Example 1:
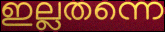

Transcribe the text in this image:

ഇല്ലതന്നെ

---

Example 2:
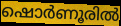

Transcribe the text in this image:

ഷൊർണൂരിൽ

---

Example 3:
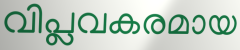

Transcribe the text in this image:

വിപ്ലവകരമായ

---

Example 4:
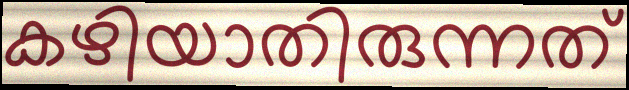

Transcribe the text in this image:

കഴിയാതിരുന്നത്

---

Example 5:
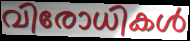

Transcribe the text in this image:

വിരോധികൾ